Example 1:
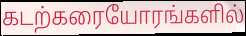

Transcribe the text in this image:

கடற்கரையோரங்களில்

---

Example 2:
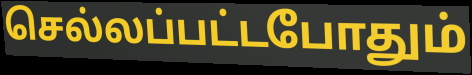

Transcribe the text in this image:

செல்லப்பட்டபோதும்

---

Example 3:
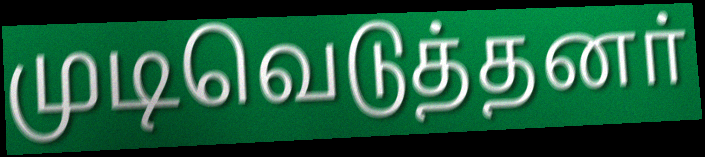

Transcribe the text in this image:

முடிவெடுத்தனர்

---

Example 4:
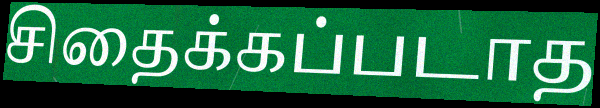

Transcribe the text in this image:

சிதைக்கப்படாத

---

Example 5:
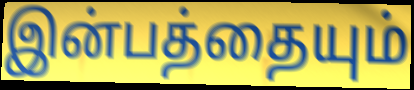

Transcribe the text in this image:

இன்பத்தையும்